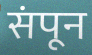
संपून